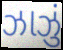
ઝાઝું